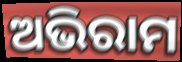
ଅଭିରାମ